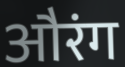
औरंग